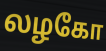
லழகோ